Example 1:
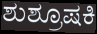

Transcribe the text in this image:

ಶುಶ್ರೂಷಕಿ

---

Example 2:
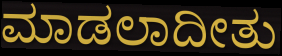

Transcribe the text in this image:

ಮಾಡಲಾದೀತು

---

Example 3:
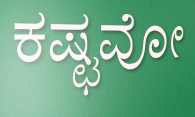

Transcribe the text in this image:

ಕಷ್ಟವೋ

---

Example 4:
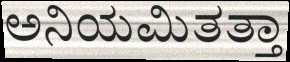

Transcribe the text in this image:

ಅನಿಯಮಿತತ್ತಾ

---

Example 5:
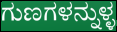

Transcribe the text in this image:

ಗುಣಗಳನ್ನುಳ್ಳ